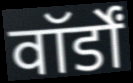
वॉर्डों